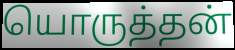
யொருத்தன்